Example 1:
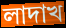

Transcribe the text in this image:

লাদাখ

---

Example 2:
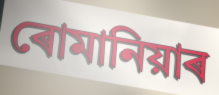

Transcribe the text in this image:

ৰোমানিয়াৰ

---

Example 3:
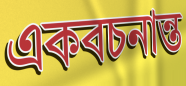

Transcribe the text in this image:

একবচনান্ত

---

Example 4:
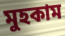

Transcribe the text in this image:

মুহকাম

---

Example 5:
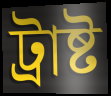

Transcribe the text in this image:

ট্ৰাষ্ট